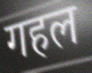
गहल